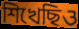
শিখেছিও